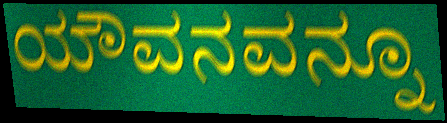
ಯೌವನವನ್ನೂ